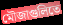
মৌজাগুলিতে